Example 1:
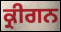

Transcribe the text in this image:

ਕ੍ਰੀਗਨ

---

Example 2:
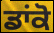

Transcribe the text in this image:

ਡਾਂਕੋ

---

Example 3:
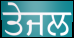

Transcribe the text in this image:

ਤੇਜਲ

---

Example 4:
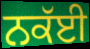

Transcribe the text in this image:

ਨਕੱਈ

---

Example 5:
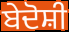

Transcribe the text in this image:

ਬੇਦੋਸ਼ੀ